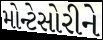
મોન્ટેસોરીને